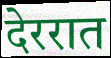
देररात